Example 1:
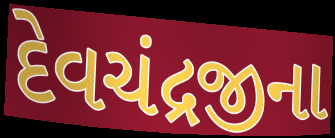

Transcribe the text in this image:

દેવચંદ્રજીના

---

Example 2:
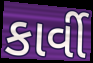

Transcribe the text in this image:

કાર્વી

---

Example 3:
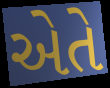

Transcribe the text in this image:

એતે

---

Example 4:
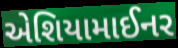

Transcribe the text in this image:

એશિયામાઈનર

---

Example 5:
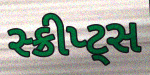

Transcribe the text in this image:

સ્ક્રીપ્ટ્સ